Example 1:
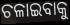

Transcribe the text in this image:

ଚଳାଇବାକୁ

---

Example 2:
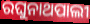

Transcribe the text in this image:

ରଘୁନାଥପାଲୀ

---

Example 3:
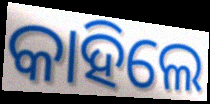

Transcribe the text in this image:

କାହିଲେ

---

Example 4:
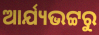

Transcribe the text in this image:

ଆର୍ଯ୍ୟଭଟ୍ଟରୁ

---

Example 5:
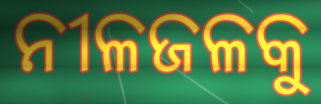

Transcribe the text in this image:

ନୀଳଜଳକୁ